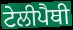
ਟੇਲੀਪੈਥੀ